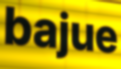
bajue